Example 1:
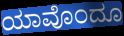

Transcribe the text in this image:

ಯಾವೊಂದೂ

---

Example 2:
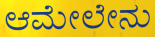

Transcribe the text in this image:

ಆಮೇಲೇನು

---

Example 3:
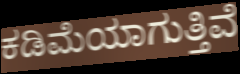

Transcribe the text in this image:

ಕಡಿಮೆಯಾಗುತ್ತಿವೆ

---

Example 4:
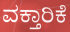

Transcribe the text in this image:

ವಕ್ತಾರಿಕೆ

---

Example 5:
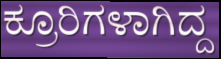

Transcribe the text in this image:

ಕ್ರೂರಿಗಳಾಗಿದ್ದ